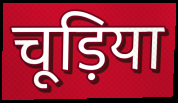
चूड़िया